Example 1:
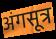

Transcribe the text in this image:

अंगसूत्र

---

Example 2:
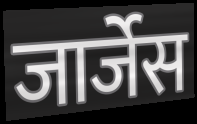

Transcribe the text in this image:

जार्जेस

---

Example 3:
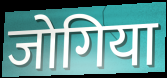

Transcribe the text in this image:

जोगिया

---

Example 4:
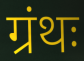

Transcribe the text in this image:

ग्रंथः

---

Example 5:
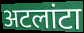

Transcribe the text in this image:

अटलांटा